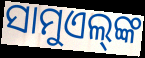
ସାମୁଏଲ୍‌ଙ୍କ